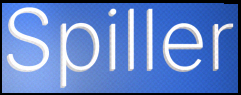
Spiller